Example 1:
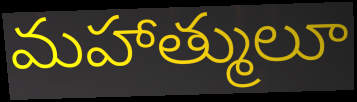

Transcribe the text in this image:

మహాత్ములూ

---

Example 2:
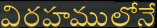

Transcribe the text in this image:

విరహములోనే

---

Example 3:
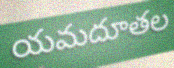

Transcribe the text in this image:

యమదూతల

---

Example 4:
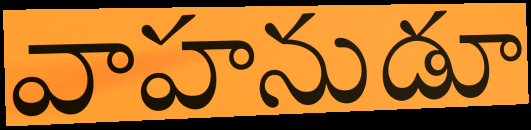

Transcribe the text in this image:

వాహనుడూ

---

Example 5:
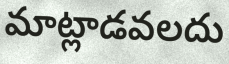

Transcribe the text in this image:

మాట్లాడవలదు